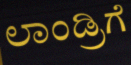
ಲಾಂಡ್ರಿಗೆ